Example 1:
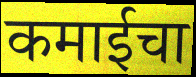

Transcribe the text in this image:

कमाईचा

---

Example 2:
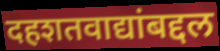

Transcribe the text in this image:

दहशतवाद्यांबद्दल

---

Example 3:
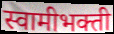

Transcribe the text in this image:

स्वामीभक्ती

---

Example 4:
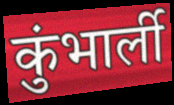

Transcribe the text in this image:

कुंभार्ली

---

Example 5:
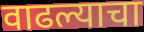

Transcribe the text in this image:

वाढल्याचा